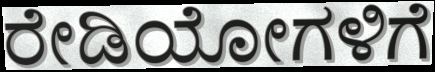
ರೇಡಿಯೋಗಳಿಗೆ